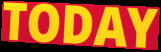
TODAY